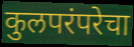
कुलपरंपरेचा